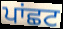
ਪਾਂਛਟ